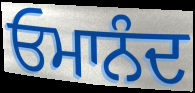
ਓਮਾਨੰਦ